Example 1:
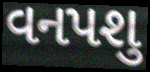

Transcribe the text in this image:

વનપશુ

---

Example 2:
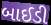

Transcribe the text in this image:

બાઈડી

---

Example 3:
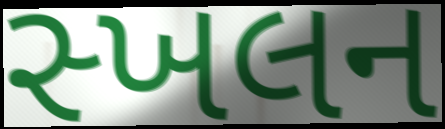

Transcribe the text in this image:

સ્ખલન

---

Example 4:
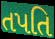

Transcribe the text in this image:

તપતિ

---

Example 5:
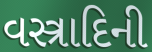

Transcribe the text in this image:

વસ્ત્રાદિની